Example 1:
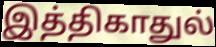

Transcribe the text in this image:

இத்திகாதுல்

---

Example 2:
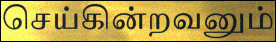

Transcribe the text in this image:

செய்கின்றவனும்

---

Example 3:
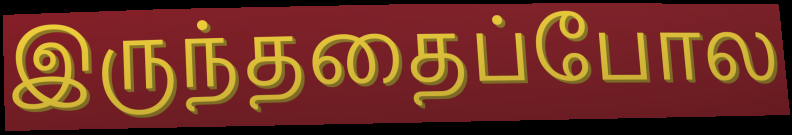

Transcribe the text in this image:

இருந்ததைப்போல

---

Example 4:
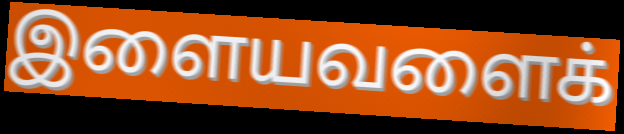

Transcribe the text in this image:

இளையவளைக்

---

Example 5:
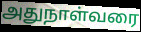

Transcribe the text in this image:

அதுநாள்வரை